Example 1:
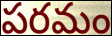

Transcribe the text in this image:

పరమం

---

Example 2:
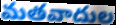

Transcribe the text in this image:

మతవాదుల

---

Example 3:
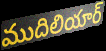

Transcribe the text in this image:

ముదిలియార్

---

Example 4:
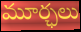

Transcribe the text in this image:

మూర్ఛలు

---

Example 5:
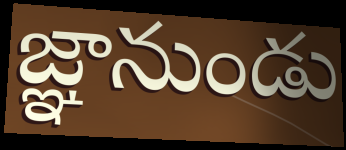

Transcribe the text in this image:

జ్ఞానుండు